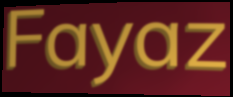
Fayaz